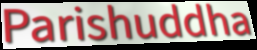
Parishuddha